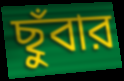
ছুঁবার